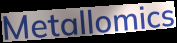
Metallomics